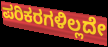
ಪರಿಕರಗಳಿಲ್ಲದೇ